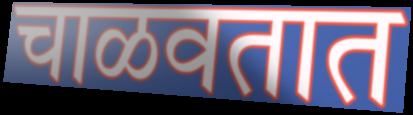
चाळवतात